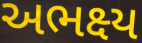
અભક્ષ્ય